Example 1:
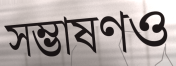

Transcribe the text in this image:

সম্ভাষণও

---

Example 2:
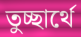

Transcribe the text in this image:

তুচ্ছার্থে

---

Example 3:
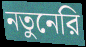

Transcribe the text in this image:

নতুনেরি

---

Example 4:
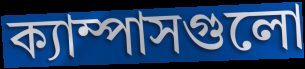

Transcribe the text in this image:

ক্যাম্পাসগুলো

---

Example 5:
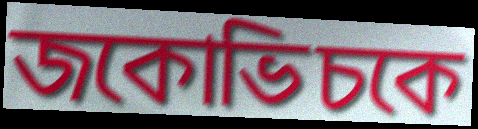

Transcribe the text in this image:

জকোভিচকে